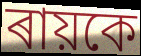
ৰায়কে